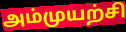
அம்முயற்சி